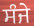
ਸੰਜੇ